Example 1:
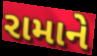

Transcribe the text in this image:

રામાને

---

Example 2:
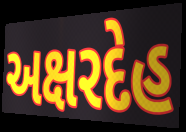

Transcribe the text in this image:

અક્ષરદેહ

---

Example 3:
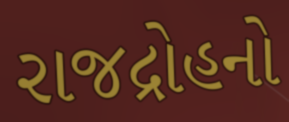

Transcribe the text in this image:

રાજદ્રોહનો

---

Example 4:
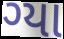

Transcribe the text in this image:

ગ્યા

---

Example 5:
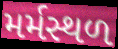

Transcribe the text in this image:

મર્મસ્થળ